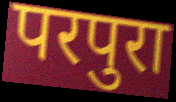
परपुरा